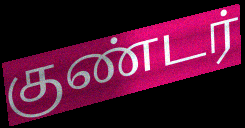
குண்டர்